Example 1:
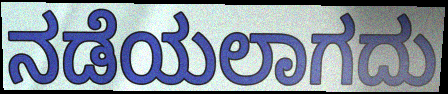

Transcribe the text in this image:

ನಡೆಯಲಾಗದು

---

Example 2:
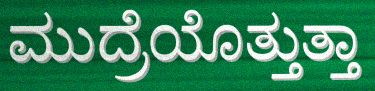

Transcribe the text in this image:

ಮುದ್ರೆಯೊತ್ತುತ್ತಾ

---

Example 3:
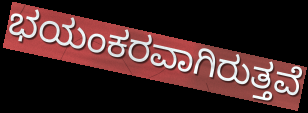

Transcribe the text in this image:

ಭಯಂಕರವಾಗಿರುತ್ತವೆ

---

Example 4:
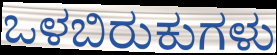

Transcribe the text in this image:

ಒಳಬಿರುಕುಗಳು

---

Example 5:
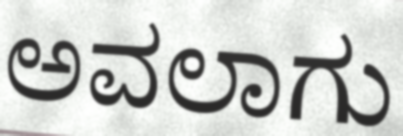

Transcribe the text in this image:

ಅವಲಾಗು